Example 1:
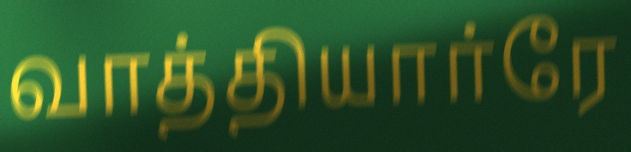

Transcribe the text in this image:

வாத்தியார்ரே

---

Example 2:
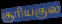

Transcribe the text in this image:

சூரியகுல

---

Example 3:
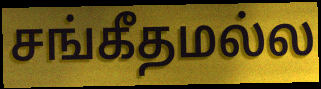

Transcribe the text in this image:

சங்கீதமல்ல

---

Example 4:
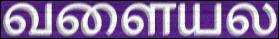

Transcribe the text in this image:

வளையல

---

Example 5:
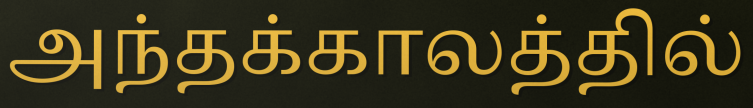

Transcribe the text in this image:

அந்தக்காலத்தில்